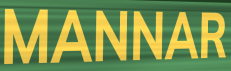
MANNAR